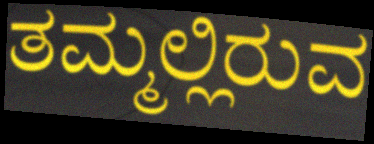
ತಮ್ಮಲ್ಲಿರುವ